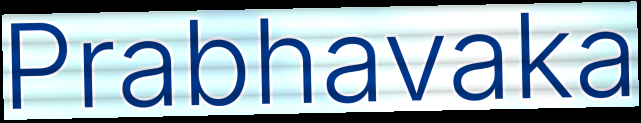
Prabhavaka